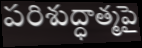
పరిశుద్ధాత్మపై